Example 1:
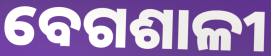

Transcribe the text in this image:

ବେଗଶାଳୀ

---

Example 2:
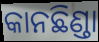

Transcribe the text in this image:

କାନଛିଣ୍ଡା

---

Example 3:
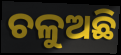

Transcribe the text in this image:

ଚଳୁଅଛି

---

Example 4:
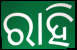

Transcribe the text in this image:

ରାହି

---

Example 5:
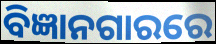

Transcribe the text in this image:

ବିଜ୍ଞାନଗାରରେ